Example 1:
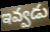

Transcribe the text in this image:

ఇవ్వడు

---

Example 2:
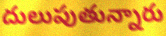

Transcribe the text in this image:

దులుపుతున్నారు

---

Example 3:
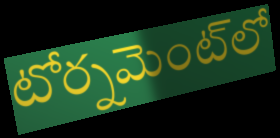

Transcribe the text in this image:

టోర్నమెంట్‌లో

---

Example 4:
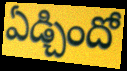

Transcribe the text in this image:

ఏడ్చిందో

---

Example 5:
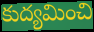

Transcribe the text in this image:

కుద్యమించి